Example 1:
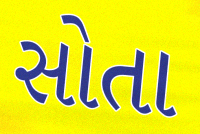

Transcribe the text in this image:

સોતા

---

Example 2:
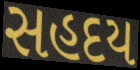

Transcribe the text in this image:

સહદય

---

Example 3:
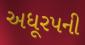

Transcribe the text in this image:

અધૂરપની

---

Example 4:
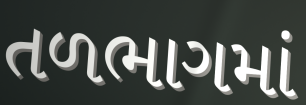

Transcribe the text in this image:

તળભાગમાં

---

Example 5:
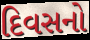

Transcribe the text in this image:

દિવસનો